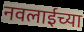
नवलाईच्या